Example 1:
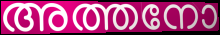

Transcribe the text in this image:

അത്തനോ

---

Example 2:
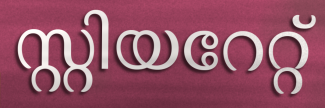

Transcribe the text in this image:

സ്റ്റിയറേറ്റ്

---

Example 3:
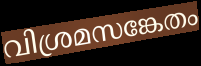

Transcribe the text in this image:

വിശ്രമസങ്കേതം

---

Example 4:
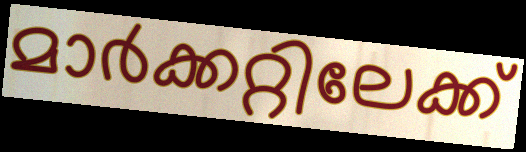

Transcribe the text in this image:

മാർക്കറ്റിലേക്ക്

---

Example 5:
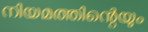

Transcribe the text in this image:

നിയമത്തിന്റെയും